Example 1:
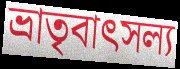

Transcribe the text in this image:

ভ্রাতৃবাৎসল্য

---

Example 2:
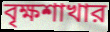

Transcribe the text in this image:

বৃক্ষশাখার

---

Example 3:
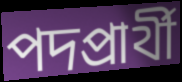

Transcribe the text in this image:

পদপ্রার্থী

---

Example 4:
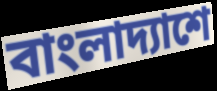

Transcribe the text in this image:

বাংলাদ্যাশে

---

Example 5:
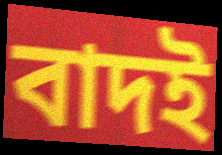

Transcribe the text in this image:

বাদই